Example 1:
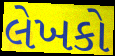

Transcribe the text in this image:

લેખકો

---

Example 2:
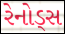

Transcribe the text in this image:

રેનોડ્સ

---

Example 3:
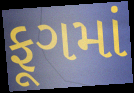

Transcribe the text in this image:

ફૂગમાં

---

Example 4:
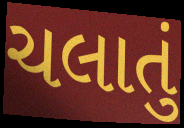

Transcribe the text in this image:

ચલાતું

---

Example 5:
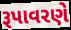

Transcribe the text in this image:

રૂપાવરણે